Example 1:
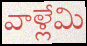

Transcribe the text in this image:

వాళ్లేమి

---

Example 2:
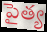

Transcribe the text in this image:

పైత్య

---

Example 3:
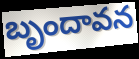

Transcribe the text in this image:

బృందావన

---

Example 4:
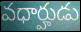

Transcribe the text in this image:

వధార్హుడు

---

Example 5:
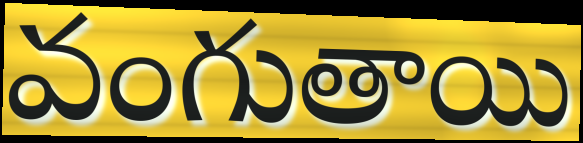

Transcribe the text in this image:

వంగుతాయి